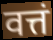
वत्तं